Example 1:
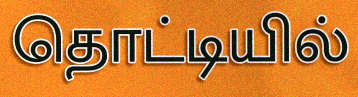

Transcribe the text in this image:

தொட்டியில்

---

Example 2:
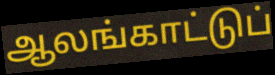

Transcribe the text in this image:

ஆலங்காட்டுப்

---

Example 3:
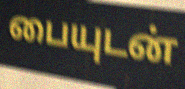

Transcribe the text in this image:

பையுடன்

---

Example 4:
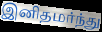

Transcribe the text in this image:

இனிதமர்ந்து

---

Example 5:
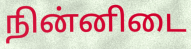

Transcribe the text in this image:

நின்னிடை